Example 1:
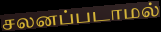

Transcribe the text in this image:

சலனப்படாமல்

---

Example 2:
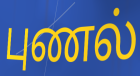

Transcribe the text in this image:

புணல்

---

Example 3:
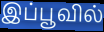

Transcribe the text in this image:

இப்பூவில்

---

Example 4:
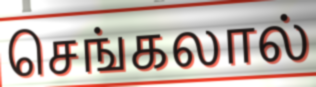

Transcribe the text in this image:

செங்கலால்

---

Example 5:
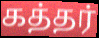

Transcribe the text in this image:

கத்தர்